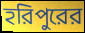
হরিপুরের